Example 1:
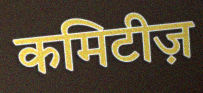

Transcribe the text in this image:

कमिटीज़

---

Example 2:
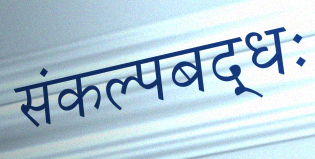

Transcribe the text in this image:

संकल्पबद्धः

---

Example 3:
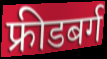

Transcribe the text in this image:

फ्रीडबर्ग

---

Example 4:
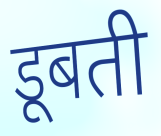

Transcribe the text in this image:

डूबती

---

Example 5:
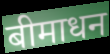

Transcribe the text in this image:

बीमाधन